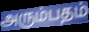
அரும்பதம்